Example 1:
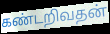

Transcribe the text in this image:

கண்டறிவதன்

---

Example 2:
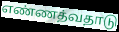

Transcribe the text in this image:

எண்ணத்வதாடு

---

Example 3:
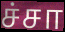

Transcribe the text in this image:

ச்சா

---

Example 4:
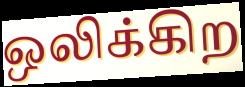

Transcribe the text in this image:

ஒலிக்கிற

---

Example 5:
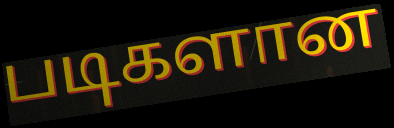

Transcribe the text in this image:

படிகளான